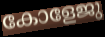
കോളേജു